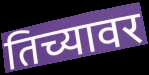
तिच्यावर